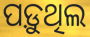
ପଡ଼ୁଥିଲ